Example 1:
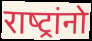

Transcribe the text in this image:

राष्ट्रांनो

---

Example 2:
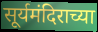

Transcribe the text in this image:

सूर्यमंदिराच्या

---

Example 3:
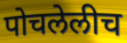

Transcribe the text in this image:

पोचलेलीच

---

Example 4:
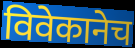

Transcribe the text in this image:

विवेकानेच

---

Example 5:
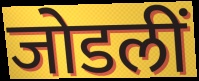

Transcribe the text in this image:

जोडलीं